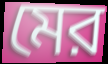
মের